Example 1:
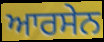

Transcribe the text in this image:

ਆਰਸੇਨ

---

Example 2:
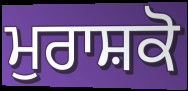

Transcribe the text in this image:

ਮੁਰਾਸ਼ਕੋ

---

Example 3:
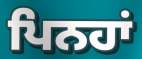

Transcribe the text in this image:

ਪਿਨਹਾਂ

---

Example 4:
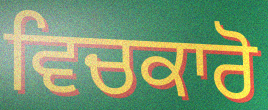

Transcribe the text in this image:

ਵਿਚਕਾਰੋ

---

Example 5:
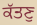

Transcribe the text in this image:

ਕੱਤਣੁ